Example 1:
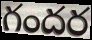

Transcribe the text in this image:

గందర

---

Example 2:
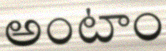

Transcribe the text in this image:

అంటాం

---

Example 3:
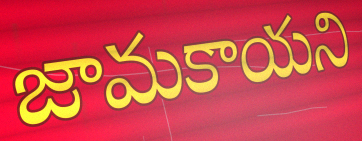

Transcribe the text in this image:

జామకాయని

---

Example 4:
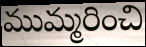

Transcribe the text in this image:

ముమ్మరించి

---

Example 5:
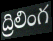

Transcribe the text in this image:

ద్రిలింగ